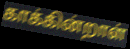
காக்கின்றாள்